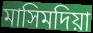
মাসিমদিয়া